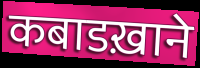
कबाडख़ाने